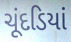
ચૂંદડિયાં